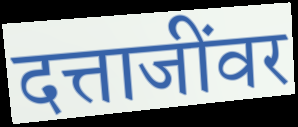
दत्ताजींवर